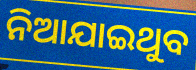
ନିଆଯାଇଥୁବ